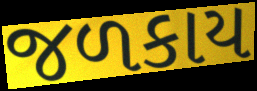
જળકાય